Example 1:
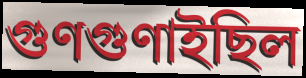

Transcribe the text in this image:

গুণগুণাইছিল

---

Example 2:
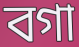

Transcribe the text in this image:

বগা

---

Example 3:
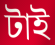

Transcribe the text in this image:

টাই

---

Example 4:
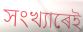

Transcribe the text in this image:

সংখ্যাৰেই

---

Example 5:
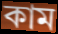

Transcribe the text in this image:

কাম